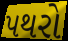
પથરો